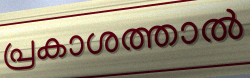
പ്രകാശത്താൽ